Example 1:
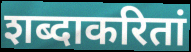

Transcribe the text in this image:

शब्दाकरितां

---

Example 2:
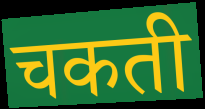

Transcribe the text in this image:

चकती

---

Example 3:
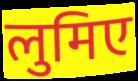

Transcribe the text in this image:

लुमिए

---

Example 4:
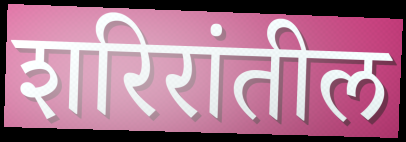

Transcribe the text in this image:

शरिरांतील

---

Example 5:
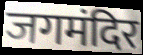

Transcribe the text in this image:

जगमंदिर